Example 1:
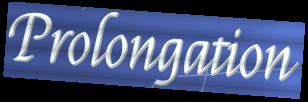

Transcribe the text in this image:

Prolongation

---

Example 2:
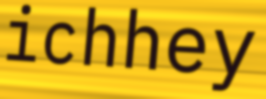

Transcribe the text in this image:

ichhey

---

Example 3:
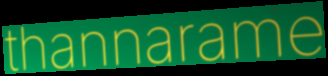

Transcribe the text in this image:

thannarame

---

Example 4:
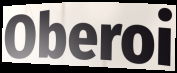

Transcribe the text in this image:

Oberoi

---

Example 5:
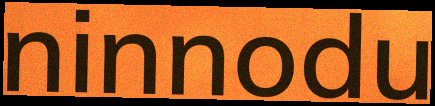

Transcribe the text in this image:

ninnodu